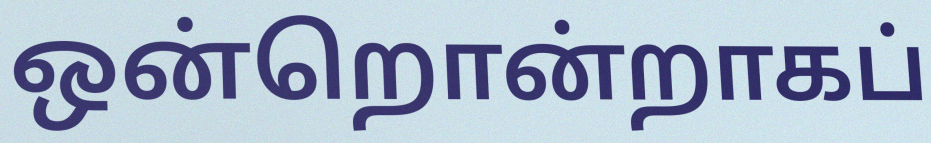
ஒன்றொன்றாகப்